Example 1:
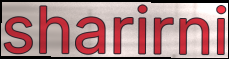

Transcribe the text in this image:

sharirni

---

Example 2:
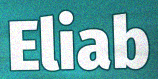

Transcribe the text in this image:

Eliab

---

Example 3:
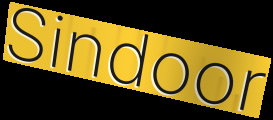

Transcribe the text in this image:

Sindoor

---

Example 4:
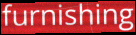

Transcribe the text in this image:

furnishing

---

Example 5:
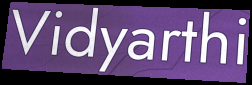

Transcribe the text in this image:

Vidyarthi